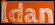
ldan